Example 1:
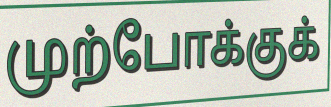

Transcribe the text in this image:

முற்போக்குக்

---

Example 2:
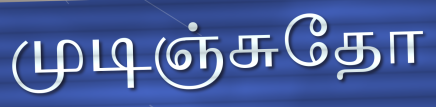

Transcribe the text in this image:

முடிஞ்சுதோ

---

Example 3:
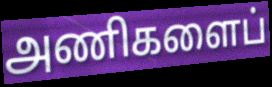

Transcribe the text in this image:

அணிகளைப்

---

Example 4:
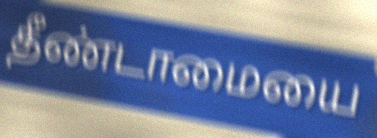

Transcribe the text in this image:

தீண்டாமையை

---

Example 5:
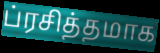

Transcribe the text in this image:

ப்ரசித்தமாக